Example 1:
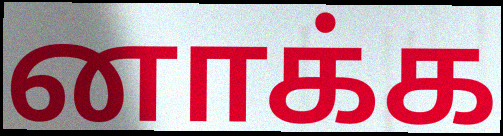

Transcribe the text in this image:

னாக்க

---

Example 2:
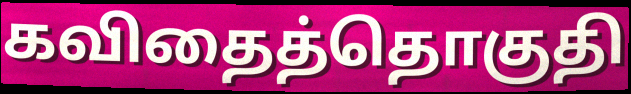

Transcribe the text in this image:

கவிதைத்தொகுதி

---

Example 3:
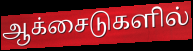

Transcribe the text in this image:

ஆக்சைடுகளில்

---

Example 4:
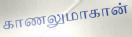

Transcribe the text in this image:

காணலுமாகான்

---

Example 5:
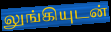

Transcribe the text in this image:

லுங்கியுடன்